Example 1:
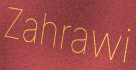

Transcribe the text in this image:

Zahrawi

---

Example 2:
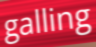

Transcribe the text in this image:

galling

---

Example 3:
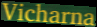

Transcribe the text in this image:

Vicharna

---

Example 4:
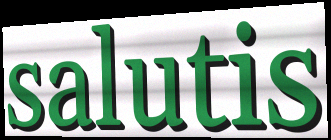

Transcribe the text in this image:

salutis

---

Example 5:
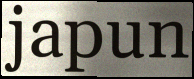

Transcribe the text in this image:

japun